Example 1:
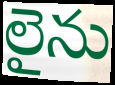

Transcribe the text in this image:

లైను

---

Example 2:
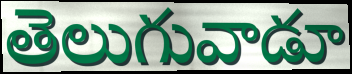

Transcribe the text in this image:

తెలుగువాడూ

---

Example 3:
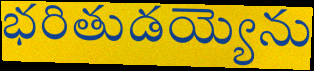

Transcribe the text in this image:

భరితుడయ్యెను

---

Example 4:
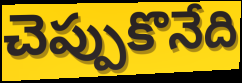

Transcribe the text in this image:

చెప్పుకొనేది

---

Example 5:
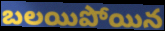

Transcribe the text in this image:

బలయిపోయిన